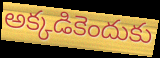
అక్కడికెందుకు